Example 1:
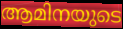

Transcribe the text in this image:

ആമിനയുടെ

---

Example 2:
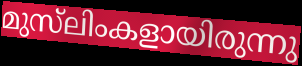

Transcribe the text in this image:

മുസ്‌ലിംകളായിരുന്നു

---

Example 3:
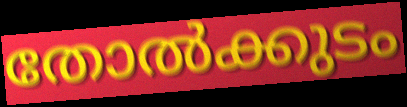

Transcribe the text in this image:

തോൽക്കുടം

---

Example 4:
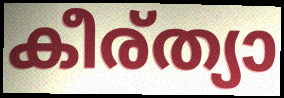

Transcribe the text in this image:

കീര്ത്യാ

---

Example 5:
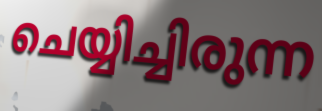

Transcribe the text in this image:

ചെയ്യിച്ചിരുന്ന